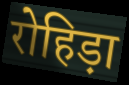
रोहिड़ा